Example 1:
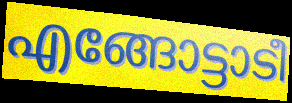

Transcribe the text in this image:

എങ്ങോട്ടാടീ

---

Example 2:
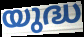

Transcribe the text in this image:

യുദ്ധ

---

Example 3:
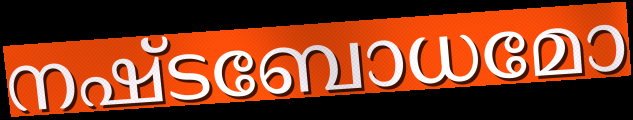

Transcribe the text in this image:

നഷ്ടബോധമോ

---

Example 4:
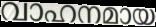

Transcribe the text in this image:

വാഹനമായ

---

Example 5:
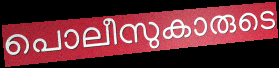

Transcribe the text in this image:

പൊലീസുകാരുടെ